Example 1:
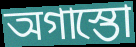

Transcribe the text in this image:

অগাস্তো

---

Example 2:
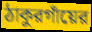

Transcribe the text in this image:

ঠাকুরগাঁয়ের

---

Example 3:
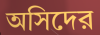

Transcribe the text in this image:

অসিদের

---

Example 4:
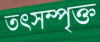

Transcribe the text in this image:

তৎসম্পৃক্ত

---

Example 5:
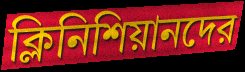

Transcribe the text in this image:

ক্লিনিশিয়ানদের